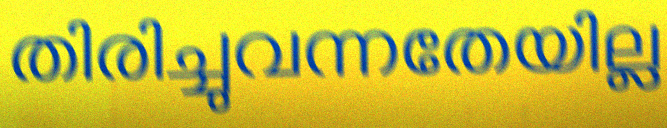
തിരിച്ചുവന്നതേയില്ല